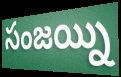
సంజయ్ని